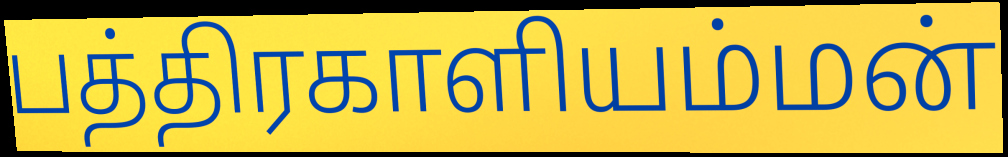
பத்திரகாளியம்மன்